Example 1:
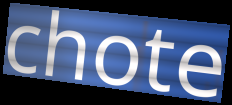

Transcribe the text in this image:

chote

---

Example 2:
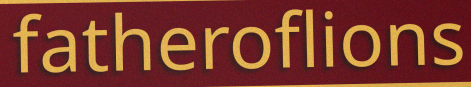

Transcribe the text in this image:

fatheroflions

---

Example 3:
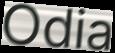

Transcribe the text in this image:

Odia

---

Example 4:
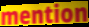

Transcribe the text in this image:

mention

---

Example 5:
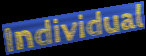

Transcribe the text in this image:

Individual